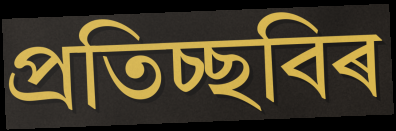
প্ৰতিচ্ছবিৰ